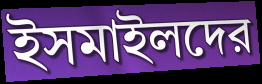
ইসমাইলদের